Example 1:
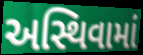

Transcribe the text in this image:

અસ્થિવામાં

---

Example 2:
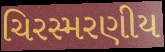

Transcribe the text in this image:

ચિરસ્મરણીય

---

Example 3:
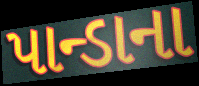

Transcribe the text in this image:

પાન્ડાના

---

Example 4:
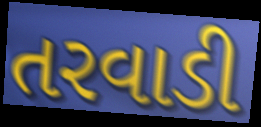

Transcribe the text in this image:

તરવાડી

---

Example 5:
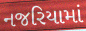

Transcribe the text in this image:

નજરિયામાં